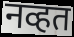
नव्हत